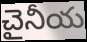
చైనీయ